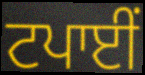
ਟਪਾਈਂ